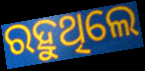
ରହୁଥିଲେ